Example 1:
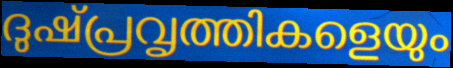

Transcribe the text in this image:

ദുഷ്പ്രവൃത്തികളെയും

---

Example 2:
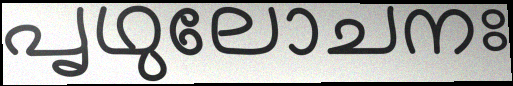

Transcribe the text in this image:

പൃഥുലോചനഃ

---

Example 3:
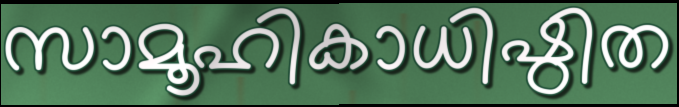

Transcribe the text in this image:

സാമൂഹികാധിഷ്ഠിത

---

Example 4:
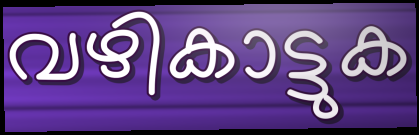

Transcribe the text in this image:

വഴികാട്ടുക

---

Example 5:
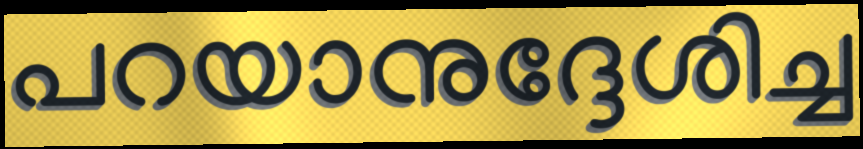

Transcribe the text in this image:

പറയാനുദ്ദേശിച്ച